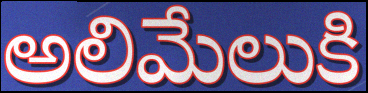
అలిమేలుకి